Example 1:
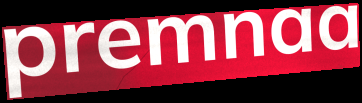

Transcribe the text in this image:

premnaa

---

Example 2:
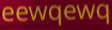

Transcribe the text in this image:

eewqewq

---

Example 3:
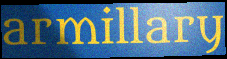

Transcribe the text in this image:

armillary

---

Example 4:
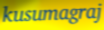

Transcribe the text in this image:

kusumagraj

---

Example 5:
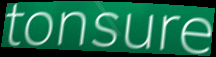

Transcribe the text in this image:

tonsure